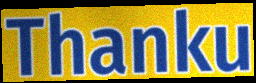
Thanku